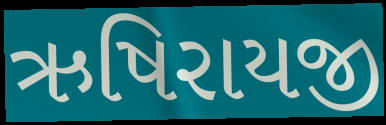
ઋષિરાયજી